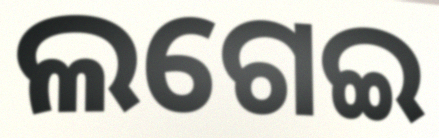
ଲଗେଇ